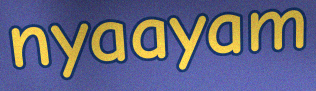
nyaayam